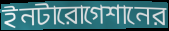
ইনটারোগেশানের